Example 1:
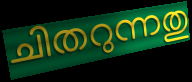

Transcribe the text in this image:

ചിതറുന്നതു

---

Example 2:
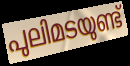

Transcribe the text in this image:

പുലിമടയുണ്ട്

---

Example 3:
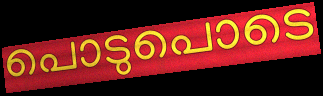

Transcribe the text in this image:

പൊടുപൊടെ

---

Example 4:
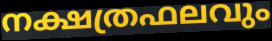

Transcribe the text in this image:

നക്ഷത്രഫലവും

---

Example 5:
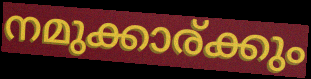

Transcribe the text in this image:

നമുക്കാര്ക്കും